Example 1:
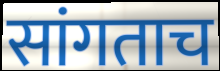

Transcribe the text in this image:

सांगताच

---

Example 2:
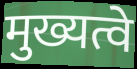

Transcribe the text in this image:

मुख्यत्वे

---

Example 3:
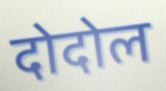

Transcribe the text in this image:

दोदोल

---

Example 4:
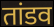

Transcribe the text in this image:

तांडव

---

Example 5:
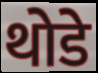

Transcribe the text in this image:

थोडे